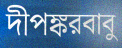
দীপঙ্করবাবু